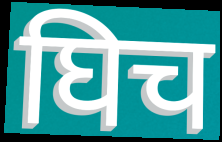
घिच